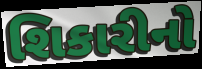
શિકારીનો